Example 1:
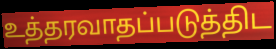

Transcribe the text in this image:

உத்தரவாதப்படுத்திட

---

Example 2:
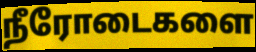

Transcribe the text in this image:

நீரோடைகளை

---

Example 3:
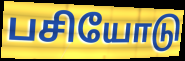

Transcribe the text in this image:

பசியோடு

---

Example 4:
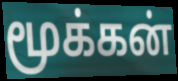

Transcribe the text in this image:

மூக்கன்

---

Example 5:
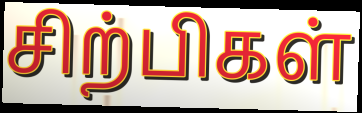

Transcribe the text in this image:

சிற்பிகள்